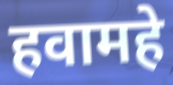
हवामहे